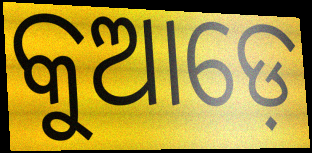
କୁଆଡ଼େ